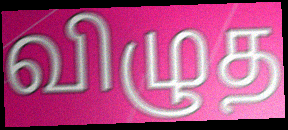
விழுத